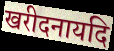
खरीदनायदि